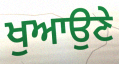
ਖੁਆਉਣੇ